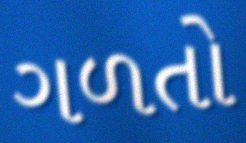
ગળતો